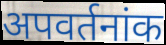
अपवर्तनांक